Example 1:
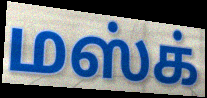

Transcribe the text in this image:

மஸ்க்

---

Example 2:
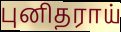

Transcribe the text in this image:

புனிதராய்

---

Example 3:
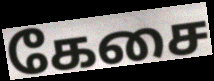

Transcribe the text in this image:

கேசை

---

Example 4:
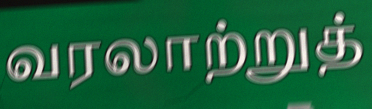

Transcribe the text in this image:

வரலாற்றுத்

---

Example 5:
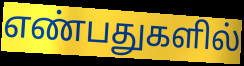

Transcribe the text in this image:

எண்பதுகளில்